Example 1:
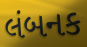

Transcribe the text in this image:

લંબનક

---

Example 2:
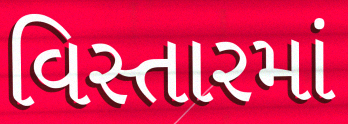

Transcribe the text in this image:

વિસ્તારમાં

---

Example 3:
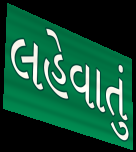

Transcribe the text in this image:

લહેવાતું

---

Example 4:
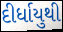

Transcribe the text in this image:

દીર્ધાયુથી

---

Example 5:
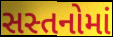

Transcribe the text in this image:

સસ્તનોમાં